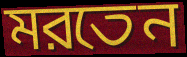
মরতেন